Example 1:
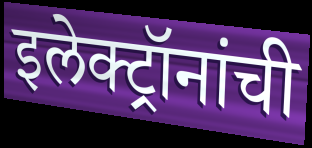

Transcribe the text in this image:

इलेक्ट्रॉनांची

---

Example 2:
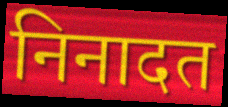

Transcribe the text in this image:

निनादत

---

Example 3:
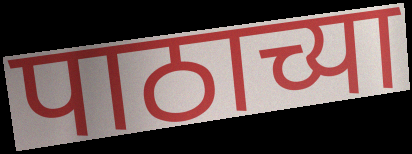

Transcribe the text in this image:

पाठाच्या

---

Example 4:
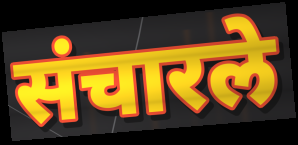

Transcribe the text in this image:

संचारले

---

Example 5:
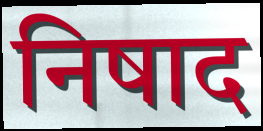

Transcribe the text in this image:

निषाद